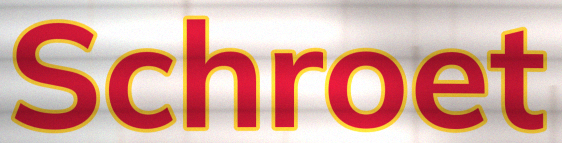
Schroet